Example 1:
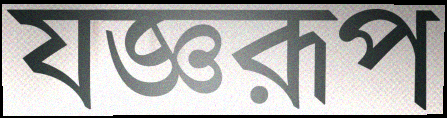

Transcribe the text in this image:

যজ্ঞরূপ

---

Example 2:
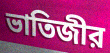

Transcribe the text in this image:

ভাতিজীর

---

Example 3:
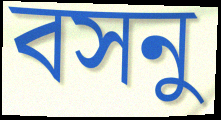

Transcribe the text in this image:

বসনু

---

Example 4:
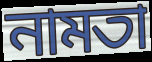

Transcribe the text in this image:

নামতা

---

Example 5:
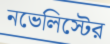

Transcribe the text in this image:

নভেলিস্টের